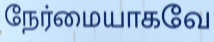
நேர்மையாகவே